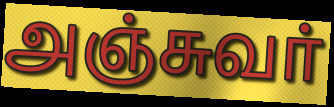
அஞ்சுவர்